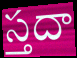
స్తదా